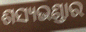
ଶସ୍ୟଭଣ୍ଡାର